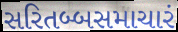
સરિતબ્બસમાચારં